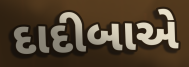
દાદીબાએ